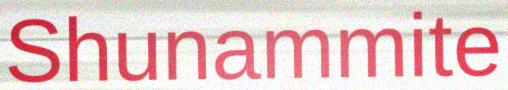
Shunammite